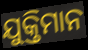
ଯୁକ୍ତିମାନ